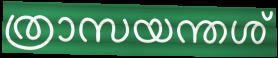
ത്രാസയന്തശ്